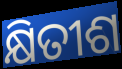
କ୍ଷିତୀଶ